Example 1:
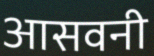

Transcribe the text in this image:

आसवनी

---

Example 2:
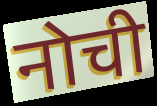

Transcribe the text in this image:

नोची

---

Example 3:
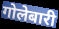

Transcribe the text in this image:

गोलेबारी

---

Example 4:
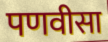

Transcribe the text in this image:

पणवीसा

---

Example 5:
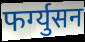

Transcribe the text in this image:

फर्ग्युसन